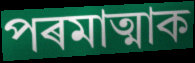
পৰমাত্মাক